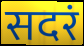
सदरं